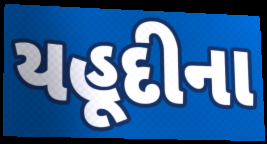
યહૂદીના